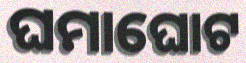
ଘମାଘୋଟ